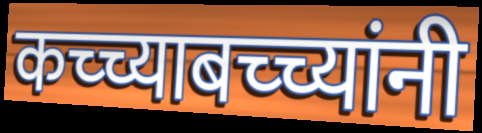
कच्च्याबच्च्यांनी